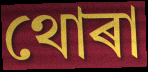
থোৰা